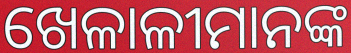
ଖେଳାଳୀମାନଙ୍କ